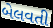
બેલવતી